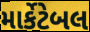
માર્કેટેબલ